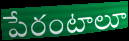
పేరంటాలూ